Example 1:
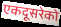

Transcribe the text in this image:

एकदूसरेको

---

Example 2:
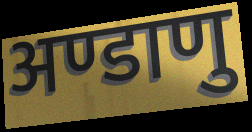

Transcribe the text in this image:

अण्डाणु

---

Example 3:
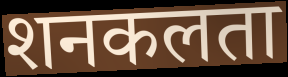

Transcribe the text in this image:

शनकलता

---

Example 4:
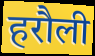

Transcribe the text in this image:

हरौली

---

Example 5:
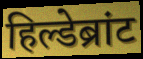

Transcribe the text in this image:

हिल्डेब्रांट